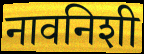
नावनिशी